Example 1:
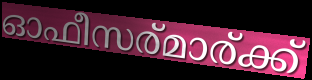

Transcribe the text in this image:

ഓഫീസര്മാര്ക്ക്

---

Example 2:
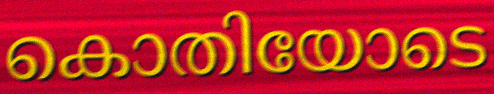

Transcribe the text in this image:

കൊതിയോടെ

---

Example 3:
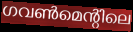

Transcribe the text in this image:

ഗവൺമെന്റിലെ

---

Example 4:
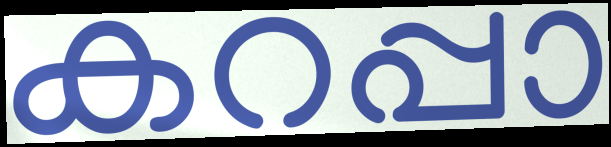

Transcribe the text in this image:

കറപ്പാ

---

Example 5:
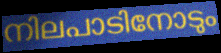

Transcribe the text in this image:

നിലപാടിനോടും